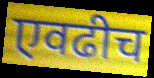
एवढीच